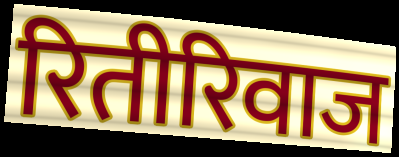
रितीरिवाज